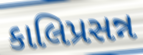
કાલિપ્રસન્ન